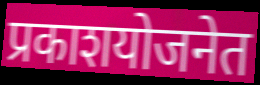
प्रकाशयोजनेत